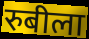
रुबीला